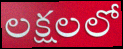
లక్షలలో